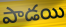
పాడయి